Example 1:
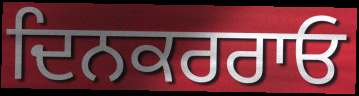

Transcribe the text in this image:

ਦਿਨਕਰਰਾਓ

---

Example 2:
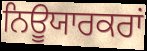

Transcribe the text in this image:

ਨਿਊਯਾਰਕਰਾਂ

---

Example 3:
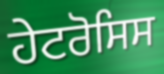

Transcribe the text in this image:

ਹੇਟਰੋਸਿਸ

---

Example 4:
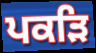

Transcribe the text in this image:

ਪਕੜਿ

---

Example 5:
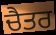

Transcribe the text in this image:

ਚੈਤਰ